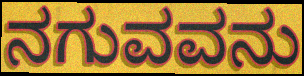
ನಗುವವನು